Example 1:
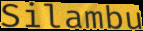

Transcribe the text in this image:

Silambu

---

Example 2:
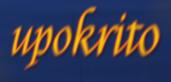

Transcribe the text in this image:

upokrito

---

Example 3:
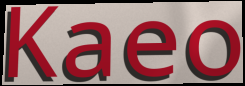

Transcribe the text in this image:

Kaeo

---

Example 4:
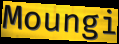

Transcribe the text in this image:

Moungi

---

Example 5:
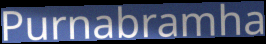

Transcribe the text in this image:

Purnabramha